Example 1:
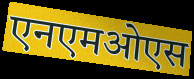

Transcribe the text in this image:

एनएमओएस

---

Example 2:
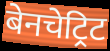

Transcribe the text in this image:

बेनचेट्रिट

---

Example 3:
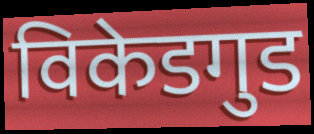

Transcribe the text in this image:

विकेडगुड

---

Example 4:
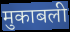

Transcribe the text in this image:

मुकाबली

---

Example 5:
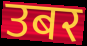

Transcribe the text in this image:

उबर